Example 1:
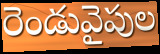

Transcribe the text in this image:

రెండువైపుల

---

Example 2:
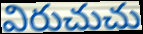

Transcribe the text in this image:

విరుచుచు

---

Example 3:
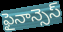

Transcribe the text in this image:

ఫైనాన్సెస్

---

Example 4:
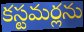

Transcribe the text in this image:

కస్టమర్లను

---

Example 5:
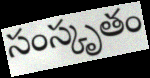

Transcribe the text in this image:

సంస్కృతం